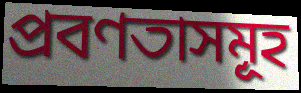
প্রবণতাসমূহ